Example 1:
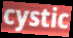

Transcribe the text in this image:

cystic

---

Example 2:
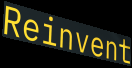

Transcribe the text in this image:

Reinvent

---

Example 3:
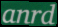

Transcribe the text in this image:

anrd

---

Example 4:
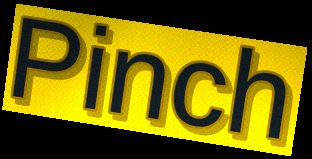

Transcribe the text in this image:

Pinch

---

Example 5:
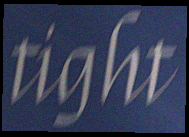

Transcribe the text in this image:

tight